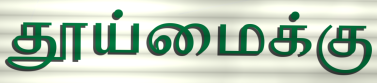
தூய்மைக்கு